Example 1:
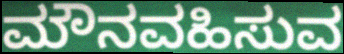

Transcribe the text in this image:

ಮೌನವಹಿಸುವ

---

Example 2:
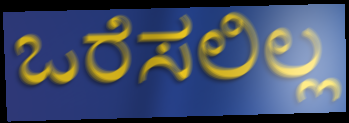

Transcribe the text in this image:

ಒರೆಸಲಿಲ್ಲ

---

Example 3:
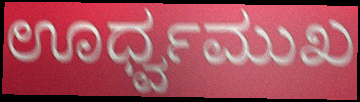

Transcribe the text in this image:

ಊರ್ಧ್ವಮುಖ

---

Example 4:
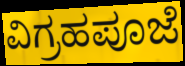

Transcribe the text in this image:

ವಿಗ್ರಹಪೂಜೆ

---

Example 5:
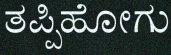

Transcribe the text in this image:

ತಪ್ಪಿಹೋಗು